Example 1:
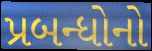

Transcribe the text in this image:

પ્રબન્ધોનો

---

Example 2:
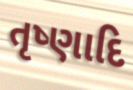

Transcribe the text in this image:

તૃષ્ણાદિ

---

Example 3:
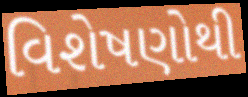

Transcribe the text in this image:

વિશેષણોથી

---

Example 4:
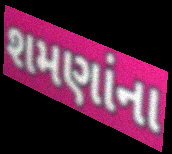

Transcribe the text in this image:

શમણાંના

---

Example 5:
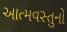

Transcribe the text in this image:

આત્મવસ્તુનો